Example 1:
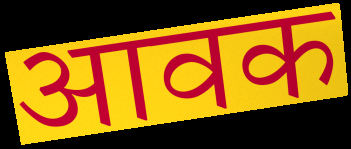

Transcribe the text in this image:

आवक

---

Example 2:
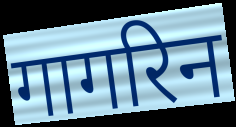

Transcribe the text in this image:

गागरिन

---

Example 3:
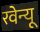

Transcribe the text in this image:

रवेन्यू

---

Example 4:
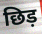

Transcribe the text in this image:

छिड़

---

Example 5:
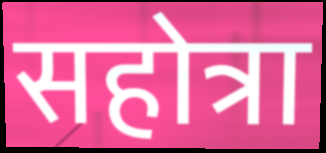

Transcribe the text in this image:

सहोत्रा